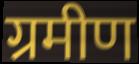
ग्रमीण